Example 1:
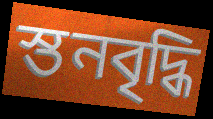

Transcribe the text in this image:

স্তনবৃদ্ধি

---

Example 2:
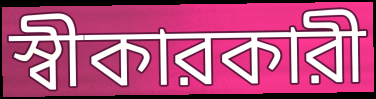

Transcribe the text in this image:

স্বীকারকারী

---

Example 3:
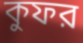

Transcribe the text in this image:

কুফর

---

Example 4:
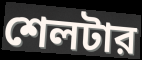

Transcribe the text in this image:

শেলটার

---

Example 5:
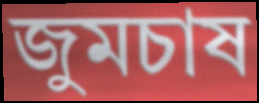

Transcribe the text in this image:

জুমচাষ